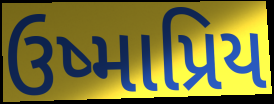
ઉષ્માપ્રિય